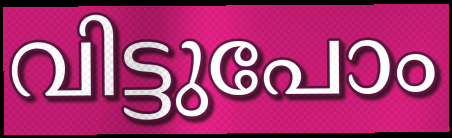
വിട്ടുപോം